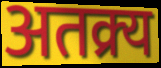
अतक्र्य